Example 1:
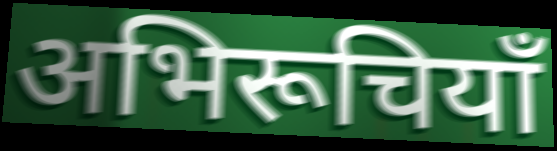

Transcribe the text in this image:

अभिरूचियाँ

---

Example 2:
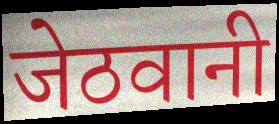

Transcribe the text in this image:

जेठवानी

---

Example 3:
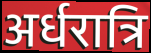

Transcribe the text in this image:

अर्धरात्रि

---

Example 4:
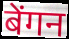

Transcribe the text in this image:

बेंगन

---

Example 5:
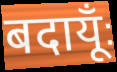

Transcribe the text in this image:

बदायूँः